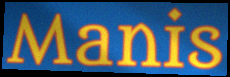
Manis